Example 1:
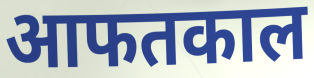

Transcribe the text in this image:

आफतकाल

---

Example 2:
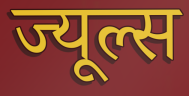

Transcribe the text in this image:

ज्यूल्स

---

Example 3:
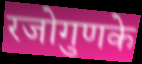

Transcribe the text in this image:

रजोगुणके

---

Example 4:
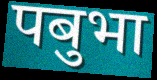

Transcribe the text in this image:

पबुभा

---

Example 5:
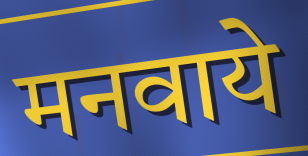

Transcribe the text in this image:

मनवाये